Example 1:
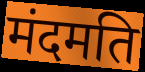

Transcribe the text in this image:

मंदमति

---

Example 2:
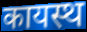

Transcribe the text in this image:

कायस्थ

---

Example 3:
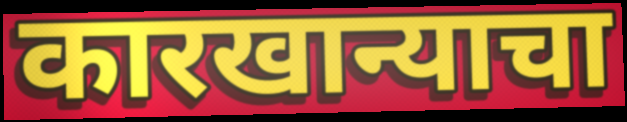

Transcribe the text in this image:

कारखान्याचा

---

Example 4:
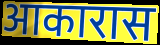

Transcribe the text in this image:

आकारास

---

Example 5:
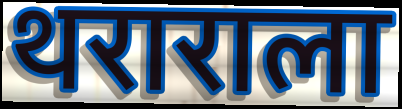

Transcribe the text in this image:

थराराला